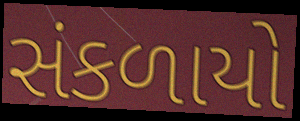
સંકળાયો